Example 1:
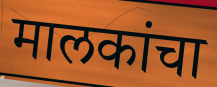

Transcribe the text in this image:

मालकांचा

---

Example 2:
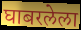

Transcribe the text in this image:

घाबरलेला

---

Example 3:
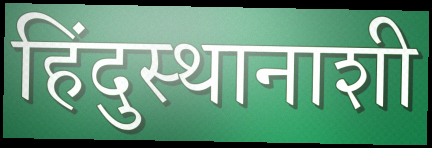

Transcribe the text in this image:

हिंदुस्थानाशी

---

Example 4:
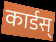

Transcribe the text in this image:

कार्डस्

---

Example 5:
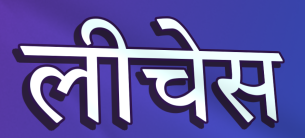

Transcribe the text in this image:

लीचेस